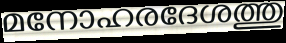
മനോഹരദേശത്തു